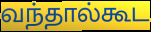
வந்தால்கூட